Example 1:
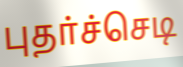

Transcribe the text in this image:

புதர்ச்செடி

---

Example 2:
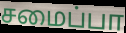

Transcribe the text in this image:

சமைப்பா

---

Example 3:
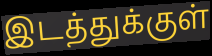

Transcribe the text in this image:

இடத்துக்குள்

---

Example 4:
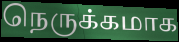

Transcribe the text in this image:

நெருக்கமாக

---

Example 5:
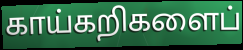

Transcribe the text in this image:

காய்கறிகளைப்